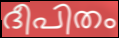
ദീപിതം